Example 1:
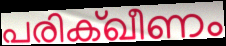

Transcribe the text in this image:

പരിക്ഖീണം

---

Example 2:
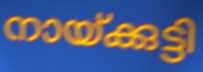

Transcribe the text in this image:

നായ്‌ക്കുട്ടി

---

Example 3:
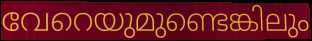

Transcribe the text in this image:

വേറെയുമുണ്ടെങ്കിലും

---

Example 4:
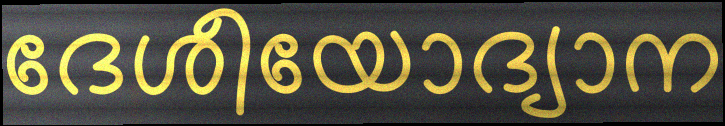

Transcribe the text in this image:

ദേശീയോദ്യാന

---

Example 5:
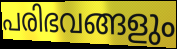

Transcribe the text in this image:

പരിഭവങ്ങളും